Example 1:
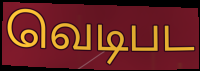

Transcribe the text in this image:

வெடிபட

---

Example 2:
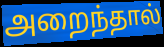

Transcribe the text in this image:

அறைந்தால்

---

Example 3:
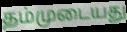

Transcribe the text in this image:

தம்முடையது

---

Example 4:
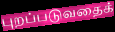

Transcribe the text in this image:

புறப்படுவதைக்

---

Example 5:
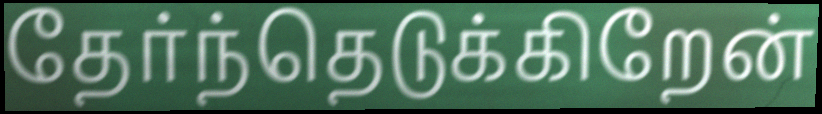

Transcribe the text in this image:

தேர்ந்தெடுக்கிறேன்